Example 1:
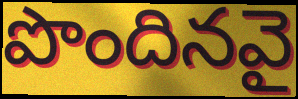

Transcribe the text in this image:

పొందినవై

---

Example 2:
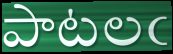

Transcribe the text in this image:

పాటలఁ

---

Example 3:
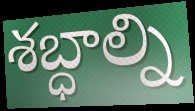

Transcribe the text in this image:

శబ్ధాల్ని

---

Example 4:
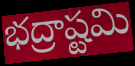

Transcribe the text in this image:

భద్రాష్టమి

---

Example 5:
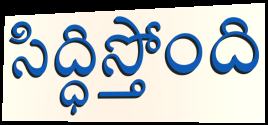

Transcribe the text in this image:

సిద్ధిస్తోంది